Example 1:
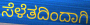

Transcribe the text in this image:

ಸೆಳೆತದಿಂದಾಗಿ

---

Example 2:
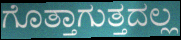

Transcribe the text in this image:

ಗೊತ್ತಾಗುತ್ತದಲ್ಲ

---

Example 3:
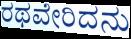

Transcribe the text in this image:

ರಥವೇರಿದನು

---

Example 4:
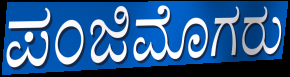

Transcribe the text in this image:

ಪಂಜಿಮೊಗರು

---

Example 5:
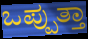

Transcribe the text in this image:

ಒಪ್ಪುತ್ತಾ